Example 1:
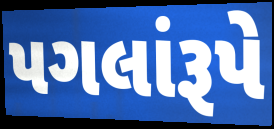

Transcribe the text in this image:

પગલાંરૂપે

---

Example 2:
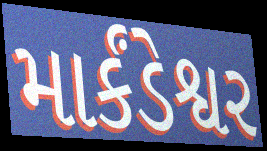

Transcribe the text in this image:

માર્કંડેશ્વર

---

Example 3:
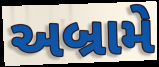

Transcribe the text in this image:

અબ્રામે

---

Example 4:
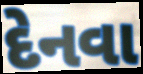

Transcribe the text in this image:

દેનવા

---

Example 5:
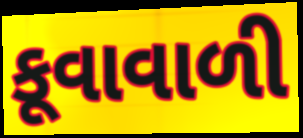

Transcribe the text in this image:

કૂવાવાળી